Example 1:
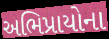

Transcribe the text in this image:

અભિપ્રાયોના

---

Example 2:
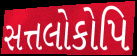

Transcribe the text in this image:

સત્તલોકોપિ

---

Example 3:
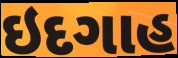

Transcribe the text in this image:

ઇદગાહ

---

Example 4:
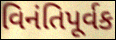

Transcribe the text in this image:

વિનંતિપૂર્વક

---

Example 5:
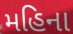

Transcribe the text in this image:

મહિના